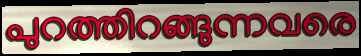
പുറത്തിറങ്ങുന്നവരെ